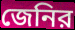
জেনির